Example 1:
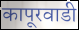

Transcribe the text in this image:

कापूरवाडी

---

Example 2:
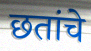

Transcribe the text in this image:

छतांचे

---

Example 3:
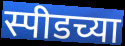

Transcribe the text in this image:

स्पीडच्या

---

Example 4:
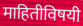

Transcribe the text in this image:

माहितीविषयी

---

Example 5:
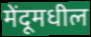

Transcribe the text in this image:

मेंदूमधील